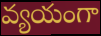
వ్యయంగా